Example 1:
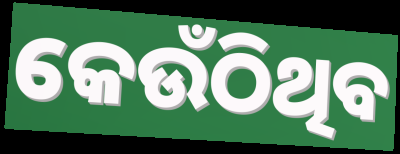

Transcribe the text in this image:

କେଉଁଠିଥିବ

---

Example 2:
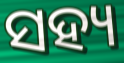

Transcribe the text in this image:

ସହ୍ୟ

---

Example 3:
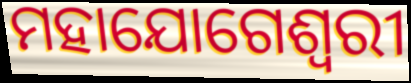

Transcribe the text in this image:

ମହାଯୋଗେଶ୍ୱରୀ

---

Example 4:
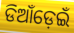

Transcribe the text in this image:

ଡିଆଁଡ଼େଇଁ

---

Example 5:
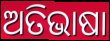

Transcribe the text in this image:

ଅତିଭାଷା